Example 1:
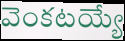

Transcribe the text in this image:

వెంకటయ్యే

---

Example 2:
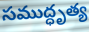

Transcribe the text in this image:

సముద్ధృత్య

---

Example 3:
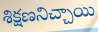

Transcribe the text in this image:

శిక్షణనిచ్చాయి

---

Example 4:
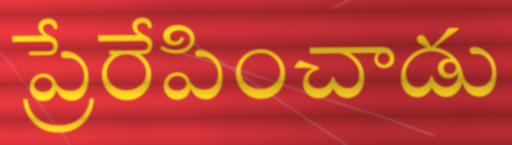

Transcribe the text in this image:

ప్రేరేపించాడు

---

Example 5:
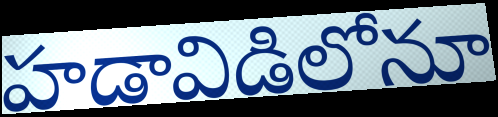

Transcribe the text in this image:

హడావిడిలోనూ